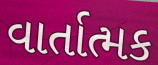
વાર્તાત્મક